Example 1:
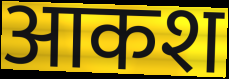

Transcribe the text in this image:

आकश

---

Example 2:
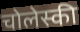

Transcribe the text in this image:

चोलेस्की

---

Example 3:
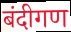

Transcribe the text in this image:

बंदीगण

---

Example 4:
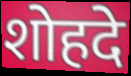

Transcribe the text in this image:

शोहदे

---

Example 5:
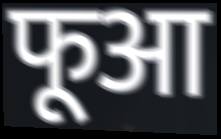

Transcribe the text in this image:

फूआ